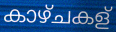
കാഴ്ചകള്